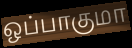
ஒப்பாகுமா